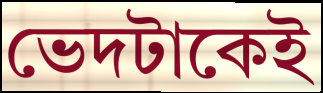
ভেদটাকেই